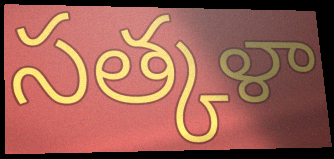
సత్కళా